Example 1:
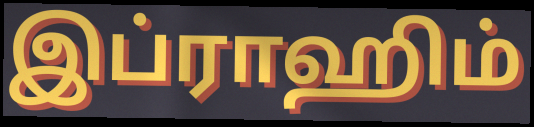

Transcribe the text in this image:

இப்ராஹிம்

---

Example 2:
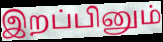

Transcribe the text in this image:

இறப்பினும்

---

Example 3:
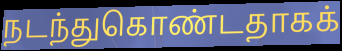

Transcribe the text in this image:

நடந்துகொண்டதாகக்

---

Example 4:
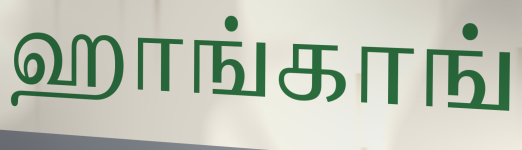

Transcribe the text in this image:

ஹாங்காங்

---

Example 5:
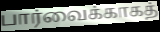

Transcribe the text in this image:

பார்வைக்காகத்